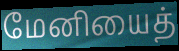
மேனியைத்